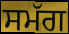
ਸਮੱਗ